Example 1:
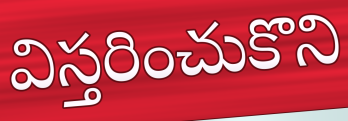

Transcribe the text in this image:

విస్తరించుకొని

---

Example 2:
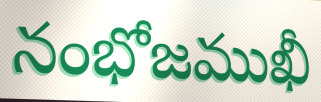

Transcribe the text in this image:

నంభోజముఖీ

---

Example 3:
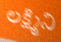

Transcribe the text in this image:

లక్ష్మిని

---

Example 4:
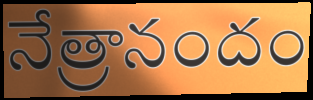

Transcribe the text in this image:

నేత్రానందం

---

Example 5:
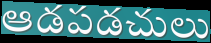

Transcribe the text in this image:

ఆడపడచులు